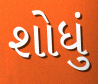
શોધું